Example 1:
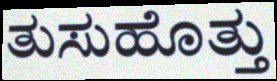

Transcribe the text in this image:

ತುಸುಹೊತ್ತು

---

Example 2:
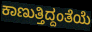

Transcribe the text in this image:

ಕಾಣುತ್ತಿದ್ದಂತೆಯೆ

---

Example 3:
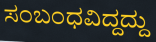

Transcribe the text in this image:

ಸಂಬಂಧವಿದ್ದದ್ದು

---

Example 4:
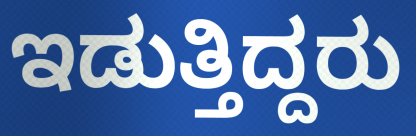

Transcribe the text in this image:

ಇಡುತ್ತಿದ್ದರು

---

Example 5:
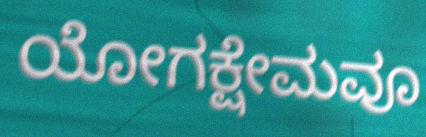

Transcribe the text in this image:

ಯೋಗಕ್ಷೇಮವೂ